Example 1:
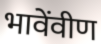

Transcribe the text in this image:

भावेंवीण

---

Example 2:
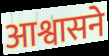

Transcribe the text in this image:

आश्वासने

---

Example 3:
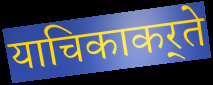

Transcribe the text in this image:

याचिकाकर्ते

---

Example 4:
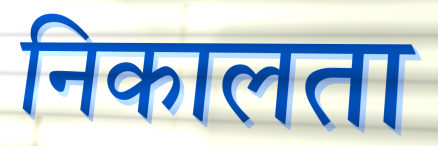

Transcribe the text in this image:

निकालता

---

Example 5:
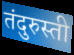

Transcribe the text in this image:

तंदुरुस्ती